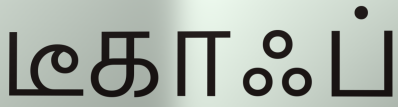
டீகாஃப்